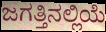
ಜಗತ್ತಿನಲ್ಲಿಯೆ